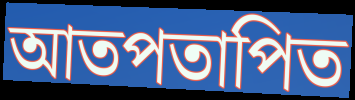
আতপতাপিত